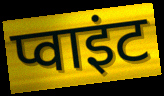
प्‍वाइंट